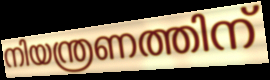
നിയന്ത്രണത്തിന്